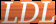
LDL